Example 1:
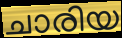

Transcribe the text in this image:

ചാരിയ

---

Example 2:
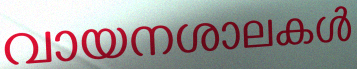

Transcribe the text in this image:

വായനശാലകൾ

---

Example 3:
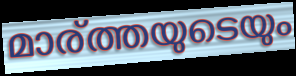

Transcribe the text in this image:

മാര്ത്തയുടെയും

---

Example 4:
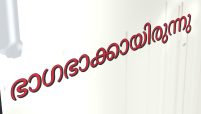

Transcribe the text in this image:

ഭാഗഭാക്കായിരുന്നു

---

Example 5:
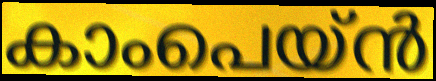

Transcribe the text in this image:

കാംപെയ്ൻ